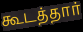
கூடத்தார்